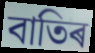
বাতিৰ